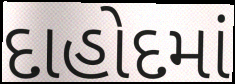
દાહોદમાં